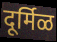
दूर्मिळ